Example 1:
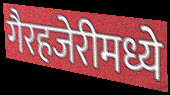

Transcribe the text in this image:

गैरहजेरीमध्ये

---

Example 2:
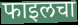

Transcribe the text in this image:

फाइलचा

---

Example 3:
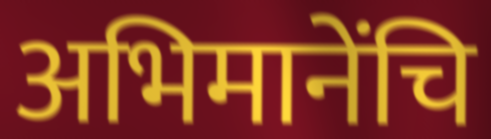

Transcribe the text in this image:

अभिमानेंचि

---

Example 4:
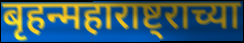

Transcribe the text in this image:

बृहन्महाराष्ट्राच्या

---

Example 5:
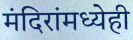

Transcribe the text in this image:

मंदिरांमध्येही